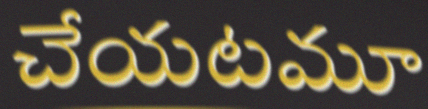
చేయటమూ